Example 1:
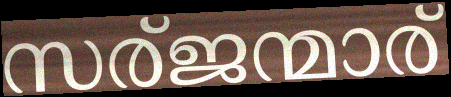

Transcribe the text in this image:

സര്ജന്മാര്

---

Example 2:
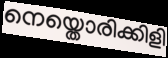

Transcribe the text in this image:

നെയ്തൊരിക്കിളി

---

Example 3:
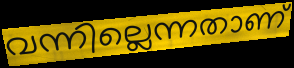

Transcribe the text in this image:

വന്നില്ലെന്നതാണ്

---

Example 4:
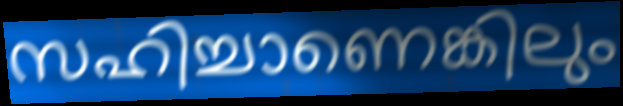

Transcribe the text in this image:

സഹിച്ചാണെങ്കിലും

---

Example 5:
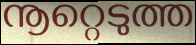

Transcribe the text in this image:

നൂറ്റെടുത്ത